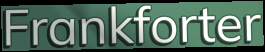
Frankforter